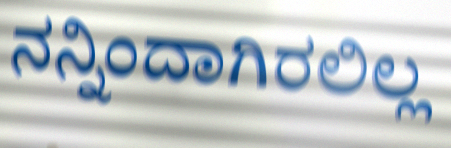
ನನ್ನಿಂದಾಗಿರಲಿಲ್ಲ